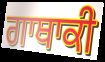
ਗਾਥਾਕੀ